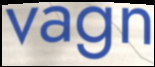
vagn